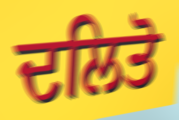
ਦਲਿਤੋ